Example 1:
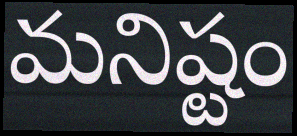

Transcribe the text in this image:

మనిష్టం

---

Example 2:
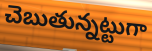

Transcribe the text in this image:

చెబుతున్నట్టుగా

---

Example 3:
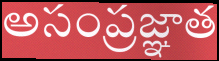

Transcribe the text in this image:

అసంప్రజ్ఞాత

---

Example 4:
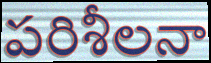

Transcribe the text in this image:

పరిశీలనా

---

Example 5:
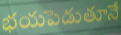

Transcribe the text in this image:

భయపెడుతూనే